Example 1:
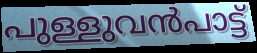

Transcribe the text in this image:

പുള്ളുവൻപാട്ട്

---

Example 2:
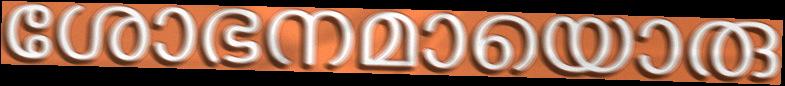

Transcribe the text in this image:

ശോഭനമായൊരു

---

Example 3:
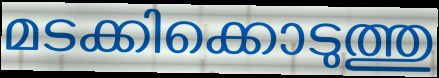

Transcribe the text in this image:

മടക്കിക്കൊടുത്തു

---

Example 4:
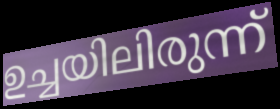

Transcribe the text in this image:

ഉച്ചയിലിരുന്ന്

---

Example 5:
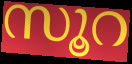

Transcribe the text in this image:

സൂറ